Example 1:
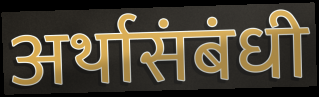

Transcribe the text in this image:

अर्थासंबंधी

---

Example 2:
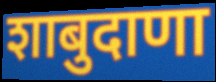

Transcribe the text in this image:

शाबुदाणा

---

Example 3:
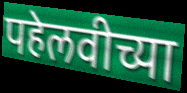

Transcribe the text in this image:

पहेलवीच्या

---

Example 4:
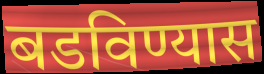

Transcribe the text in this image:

बडविण्यास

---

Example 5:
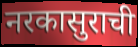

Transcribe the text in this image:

नरकासुराची